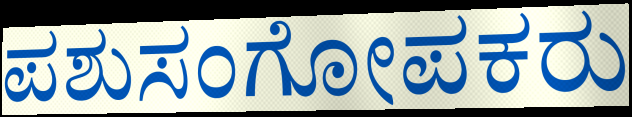
ಪಶುಸಂಗೋಪಕರು